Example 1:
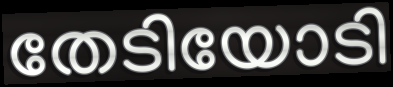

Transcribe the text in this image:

തേടിയോടി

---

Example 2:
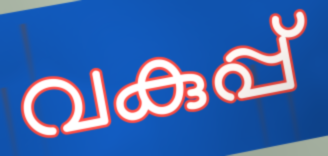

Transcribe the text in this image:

വകുപ്പ്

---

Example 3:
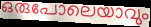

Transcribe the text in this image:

ഒരുപോലെയാവും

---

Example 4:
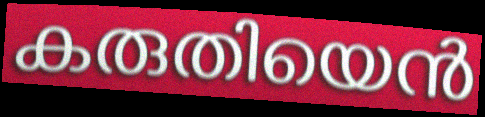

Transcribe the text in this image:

കരുതിയെൻ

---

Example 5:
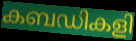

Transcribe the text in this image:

കബഡികളി